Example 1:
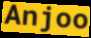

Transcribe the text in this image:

Anjoo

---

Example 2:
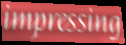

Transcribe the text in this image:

impressing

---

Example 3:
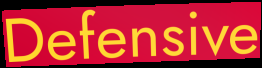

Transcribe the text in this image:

Defensive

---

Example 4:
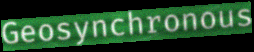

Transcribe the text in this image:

Geosynchronous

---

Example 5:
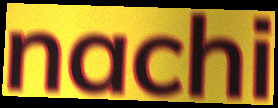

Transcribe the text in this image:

nachi